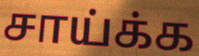
சாய்க்க